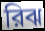
রিঝ